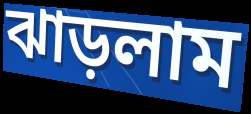
ঝাড়লাম